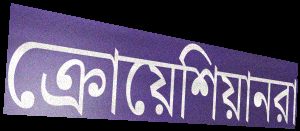
ক্রোয়েশিয়ানরা